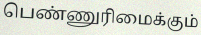
பெண்ணுரிமைக்கும்